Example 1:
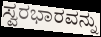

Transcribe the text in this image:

ಸ್ವರಭಾರವನ್ನು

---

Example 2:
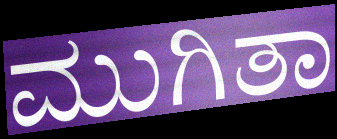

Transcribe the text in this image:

ಮುಗಿತಾ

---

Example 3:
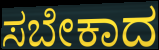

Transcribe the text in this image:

ಸಬೇಕಾದ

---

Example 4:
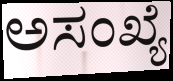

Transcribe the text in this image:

ಅಸಂಖ್ಯೆ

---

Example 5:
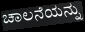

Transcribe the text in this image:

ಚಾಲನೆಯನ್ನು